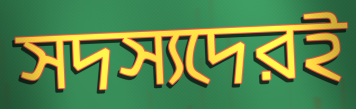
সদস্যদেরই